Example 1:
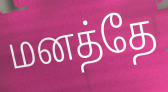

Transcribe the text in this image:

மனத்தே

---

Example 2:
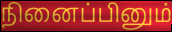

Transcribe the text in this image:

நினைப்பினும்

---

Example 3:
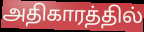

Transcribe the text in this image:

அதிகாரத்தில்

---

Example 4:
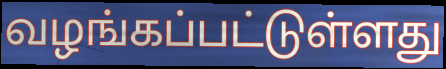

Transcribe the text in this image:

வழங்கப்பட்டுள்ளது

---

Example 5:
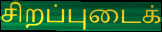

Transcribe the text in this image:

சிறப்புடைக்